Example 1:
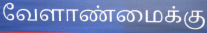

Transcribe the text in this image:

வேளாண்மைக்கு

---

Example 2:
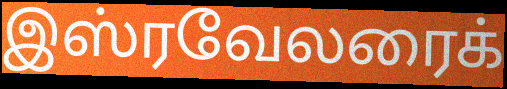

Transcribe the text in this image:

இஸ்ரவேலரைக்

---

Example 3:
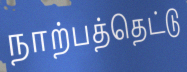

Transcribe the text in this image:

நாற்பத்தெட்டு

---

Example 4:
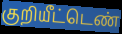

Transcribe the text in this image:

குறியீட்டெண்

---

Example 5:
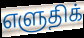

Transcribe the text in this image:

எளுதிக்